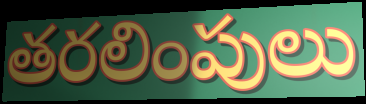
తరలింపులు